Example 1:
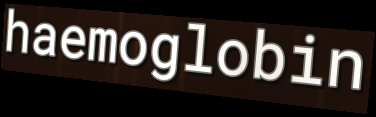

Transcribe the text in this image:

haemoglobin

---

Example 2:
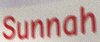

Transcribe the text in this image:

Sunnah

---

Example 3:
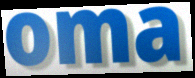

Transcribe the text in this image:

oma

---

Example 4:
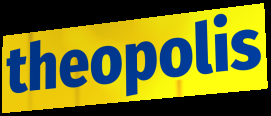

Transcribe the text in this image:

theopolis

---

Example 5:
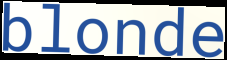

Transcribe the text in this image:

blonde